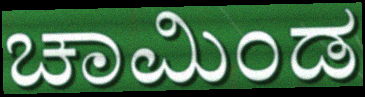
ಚಾಮಿಂಡ